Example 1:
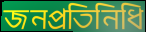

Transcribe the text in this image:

জনপ্রতিনিধি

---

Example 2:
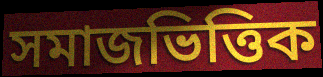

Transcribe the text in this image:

সমাজভিত্তিক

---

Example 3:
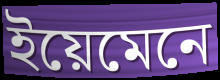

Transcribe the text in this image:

ইয়েমেনে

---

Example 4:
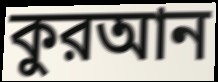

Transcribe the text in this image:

কুরআন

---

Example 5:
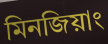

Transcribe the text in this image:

মিনজিয়াং